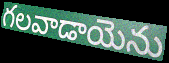
గలవాడాయెను